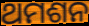
ଥମଶନ